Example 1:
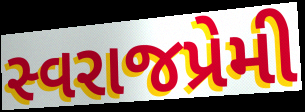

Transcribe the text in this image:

સ્વરાજપ્રેમી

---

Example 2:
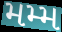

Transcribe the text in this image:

મમ્મ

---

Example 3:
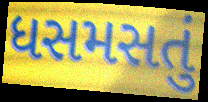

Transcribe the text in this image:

ધસમસતું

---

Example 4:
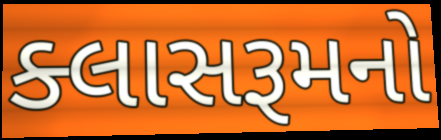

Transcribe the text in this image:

ક્લાસરૂમનો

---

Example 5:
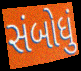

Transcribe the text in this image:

સંબોધું